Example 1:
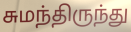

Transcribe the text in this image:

சுமந்திருந்து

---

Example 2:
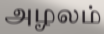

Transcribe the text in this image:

அழலம்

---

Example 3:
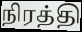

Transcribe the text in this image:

நிரத்தி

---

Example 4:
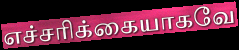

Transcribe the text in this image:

எச்சரிக்கையாகவே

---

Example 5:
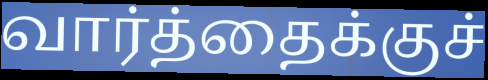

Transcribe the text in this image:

வார்த்தைக்குச்